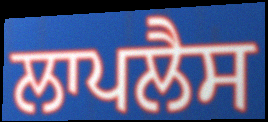
ਲਾਪਲੈਸ